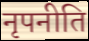
नृपनीति